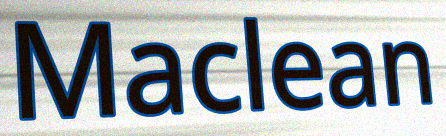
Maclean